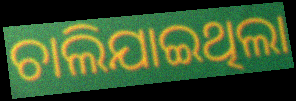
ଚାଲିଯାଇଥିଲା